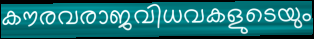
കൗരവരാജവിധവകളുടെയും